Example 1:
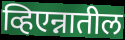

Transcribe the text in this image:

व्हिएन्नातील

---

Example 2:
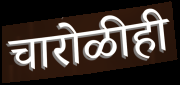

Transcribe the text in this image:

चारोळीही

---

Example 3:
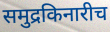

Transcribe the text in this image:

समुद्रकिनारीच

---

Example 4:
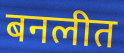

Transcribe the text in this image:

बनलीत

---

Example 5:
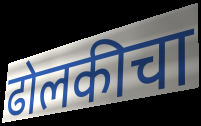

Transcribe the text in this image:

ढोलकीचा